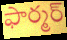
ఫార్మర్